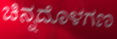
ಚಿನ್ನದೊಳಗಣ